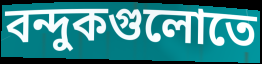
বন্দুকগুলোতে